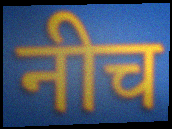
नीच